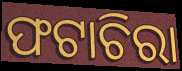
ଫଟାଚିରା